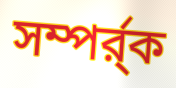
সম্পর্র্ক